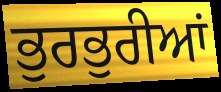
ਭੁਰਭੁਰੀਆਂ